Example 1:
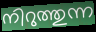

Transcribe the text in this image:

നിറുത്തുന്ന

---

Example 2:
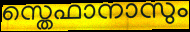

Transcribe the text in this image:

സ്തെഫാനാസും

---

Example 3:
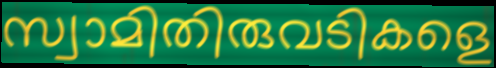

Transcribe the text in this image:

സ്വാമിതിരുവടികളെ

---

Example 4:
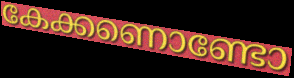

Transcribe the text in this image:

കേക്കണൊണ്ടോ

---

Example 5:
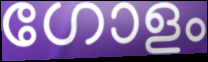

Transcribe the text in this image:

ഗോളം